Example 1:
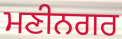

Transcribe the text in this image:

ਮਣੀਨਗਰ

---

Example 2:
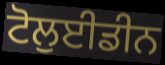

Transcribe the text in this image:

ਟੋਲੁਈਡੀਨ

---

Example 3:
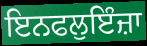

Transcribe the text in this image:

ਇਨਫਲੁਇੰਜ਼ਾ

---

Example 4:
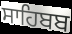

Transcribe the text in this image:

ਸਾਹਿਬਬ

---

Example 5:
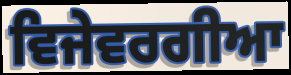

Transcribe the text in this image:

ਵਿਜੇਵਰਗੀਆ